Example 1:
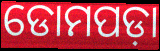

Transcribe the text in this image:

ଡୋମପଡ଼ା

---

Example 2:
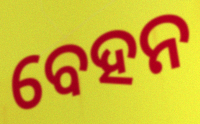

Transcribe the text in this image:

ବେହନ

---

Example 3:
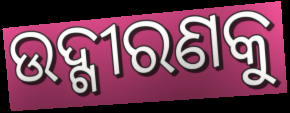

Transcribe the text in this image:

ଉଦ୍ଗୀରଣକୁ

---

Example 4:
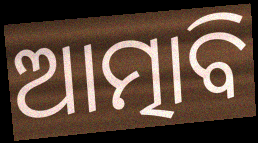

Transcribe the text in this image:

ଆତ୍ମାବି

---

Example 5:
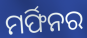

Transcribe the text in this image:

ମର୍ଫିନର